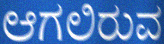
ಆಗಲಿರುವ